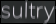
sultry